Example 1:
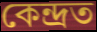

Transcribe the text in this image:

কেন্দ্ৰত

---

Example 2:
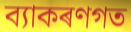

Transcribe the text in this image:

ব্যাকৰণগত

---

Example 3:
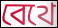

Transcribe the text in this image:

বেথে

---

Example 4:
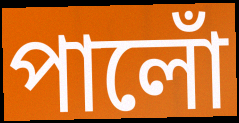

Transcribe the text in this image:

পালোঁ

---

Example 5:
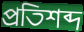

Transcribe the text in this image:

প্ৰতিশব্দ